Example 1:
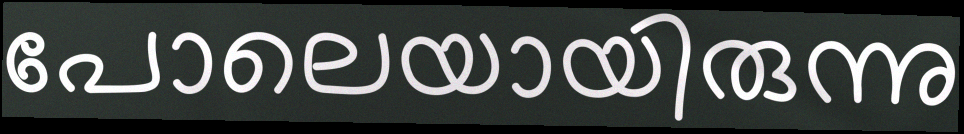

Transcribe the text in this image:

പോലെയായിരുന്നു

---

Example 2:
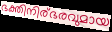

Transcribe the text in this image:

ഭക്തിനിര്ഭരവുമായ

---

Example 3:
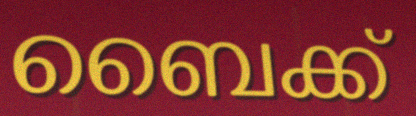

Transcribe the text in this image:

ബൈക്ക്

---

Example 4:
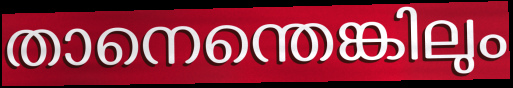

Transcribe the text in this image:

താനെന്തെങ്കിലും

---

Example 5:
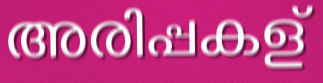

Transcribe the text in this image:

അരിപ്പകള്